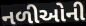
નળીઓની